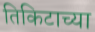
तिकिटाच्या